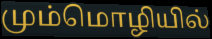
மும்மொழியில்